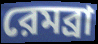
রেমব্রা